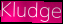
Kludge